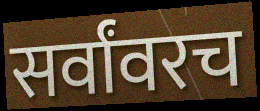
सर्वांवरच